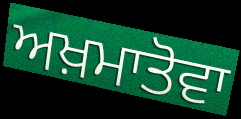
ਅਖ਼ਮਾਤੋਵਾ